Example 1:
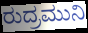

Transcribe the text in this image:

ರುದ್ರಮುನಿ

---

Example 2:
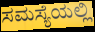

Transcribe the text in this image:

ಸಮಸ್ಯೆಯಲ್ಲಿ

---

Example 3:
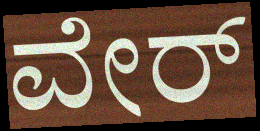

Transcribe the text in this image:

ವೇರ್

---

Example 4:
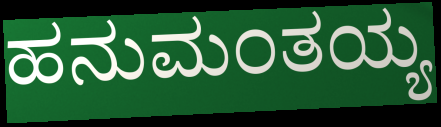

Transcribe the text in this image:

ಹನುಮಂತಯ್ಯ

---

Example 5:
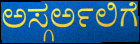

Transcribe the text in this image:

ಅಸ್ಗರ್ಅಲಿಗೆ